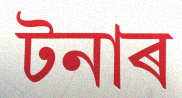
টনাৰ